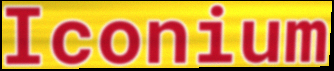
Iconium